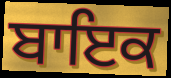
ਬਾਇਕ